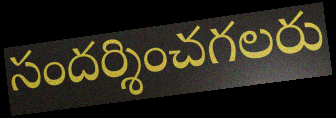
సందర్శించగలరు